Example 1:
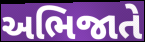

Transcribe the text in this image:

અભિજાતે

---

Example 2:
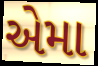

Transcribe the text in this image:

એમા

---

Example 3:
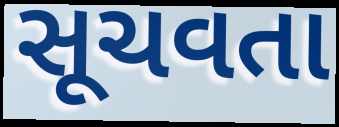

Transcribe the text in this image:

સૂચવતા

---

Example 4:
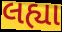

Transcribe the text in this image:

લહ્યા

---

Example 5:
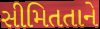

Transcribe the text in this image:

સીમિતતાને